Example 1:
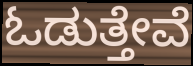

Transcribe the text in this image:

ಓಡುತ್ತೇವೆ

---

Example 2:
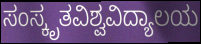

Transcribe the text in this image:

ಸಂಸ್ಕೃತವಿಶ್ವವಿದ್ಯಾಲಯ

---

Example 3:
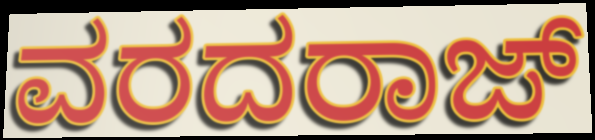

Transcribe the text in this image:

ವರದರಾಜ್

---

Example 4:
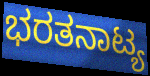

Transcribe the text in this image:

ಭರತನಾಟ್ಯ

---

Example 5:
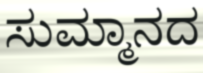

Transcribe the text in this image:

ಸುಮ್ಮಾನದ